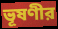
ভূষণীর